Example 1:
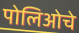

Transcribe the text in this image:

पोलिओचे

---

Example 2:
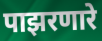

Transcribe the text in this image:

पाझरणारे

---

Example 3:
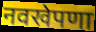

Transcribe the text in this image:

नवखेपणा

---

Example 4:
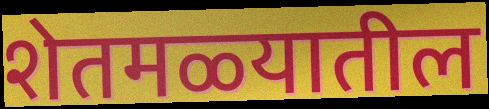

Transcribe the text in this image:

शेतमळ्यातील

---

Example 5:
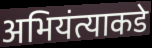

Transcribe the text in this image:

अभियंत्याकडे